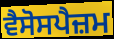
ਵੈਸੋਸਪੈਜ਼ਮ